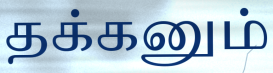
தக்கனும்